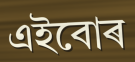
এইবোৰ